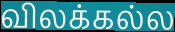
விலக்கல்ல